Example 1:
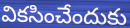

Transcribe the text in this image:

వికసించేందుకు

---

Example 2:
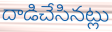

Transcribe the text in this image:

దాడిచేసినట్లు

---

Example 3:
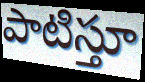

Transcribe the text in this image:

పాటిస్తూ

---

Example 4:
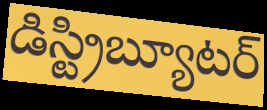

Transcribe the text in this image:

డిస్ట్రిబ్యూటర్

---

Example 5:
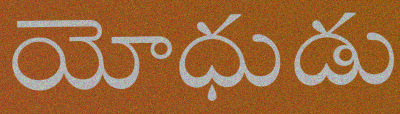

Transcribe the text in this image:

యోధుడు